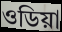
ওডিয়া